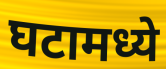
घटामध्ये